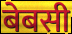
बेबसी